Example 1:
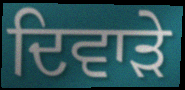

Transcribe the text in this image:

ਦਿਵਾੜੇ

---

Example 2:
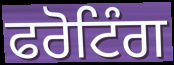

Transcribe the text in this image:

ਫਰੋਟਿੰਗ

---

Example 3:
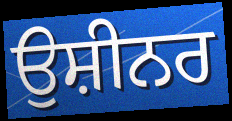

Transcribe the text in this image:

ਉਸ਼ੀਨਰ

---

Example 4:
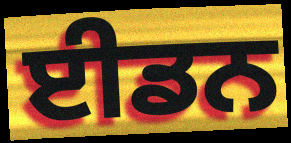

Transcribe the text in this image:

ਈਡਨ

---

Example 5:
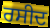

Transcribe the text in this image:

ਰਸੀਦ